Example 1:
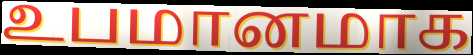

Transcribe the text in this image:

உபமானமாக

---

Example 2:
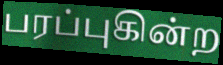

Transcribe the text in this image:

பரப்புகின்ற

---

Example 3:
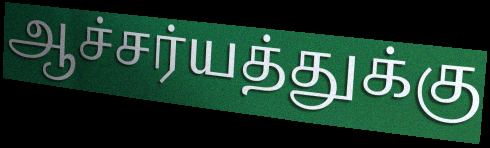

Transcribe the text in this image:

ஆச்சர்யத்துக்கு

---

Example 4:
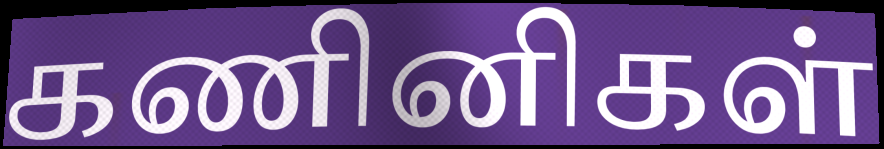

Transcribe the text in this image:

கணினிகள்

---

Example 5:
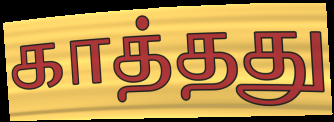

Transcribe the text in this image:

காத்தது